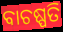
ବାଚଷ୍ପତି